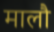
मालौ